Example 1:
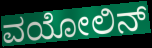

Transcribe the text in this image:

ವಯೋಲಿನ್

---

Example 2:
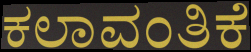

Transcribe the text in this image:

ಕಲಾವಂತಿಕೆ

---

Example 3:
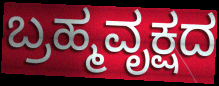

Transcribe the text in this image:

ಬ್ರಹ್ಮವೃಕ್ಷದ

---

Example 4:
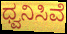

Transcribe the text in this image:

ಧ್ವನಿಸಿವೆ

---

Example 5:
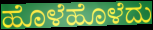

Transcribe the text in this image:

ಹೊಳೆಹೊಳೆದು